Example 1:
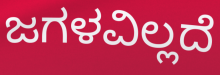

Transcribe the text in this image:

ಜಗಳವಿಲ್ಲದೆ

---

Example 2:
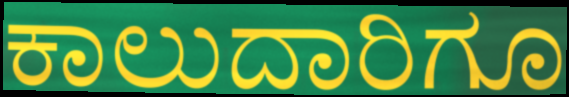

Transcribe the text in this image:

ಕಾಲುದಾರಿಗೂ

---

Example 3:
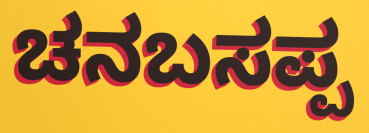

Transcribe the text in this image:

ಚನಬಸಪ್ಪ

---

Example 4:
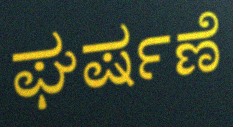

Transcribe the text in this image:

ಘರ್ಷಣೆ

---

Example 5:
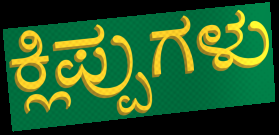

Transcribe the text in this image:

ಕ್ಲಿಪ್ಪುಗಳು